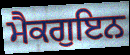
ਮੈਕਗੁਇਨ